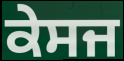
ਕੇਸਜ